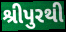
શ્રીપુરથી